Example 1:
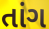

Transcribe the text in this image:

તાંગ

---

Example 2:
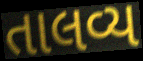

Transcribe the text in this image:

તાલવ્ય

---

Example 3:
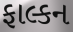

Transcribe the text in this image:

ફાલ્કન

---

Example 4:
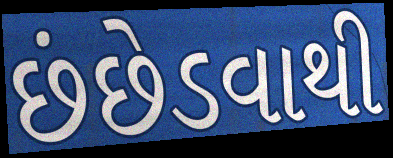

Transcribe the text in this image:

છંછેડવાથી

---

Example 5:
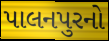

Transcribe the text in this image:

પાલનપુરનો